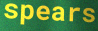
spears